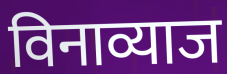
विनाव्याज